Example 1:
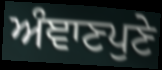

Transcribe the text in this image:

ਅੰਞਾਣਪੁਣੇ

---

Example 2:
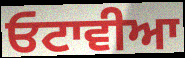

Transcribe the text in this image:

ਓਟਾਵੀਆ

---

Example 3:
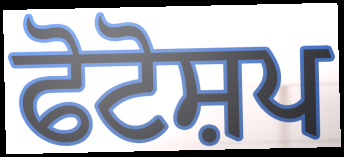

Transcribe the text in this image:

ਫੋਟੋਸ਼ਪ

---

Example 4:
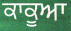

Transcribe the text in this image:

ਕਾਕੂਆ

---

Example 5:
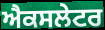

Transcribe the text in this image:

ਐਕਸਲੇਟਰ